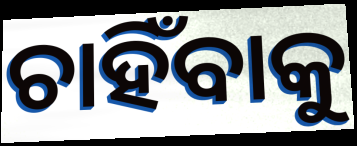
ଚାହିଁବାକୁ